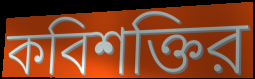
কবিশক্তির